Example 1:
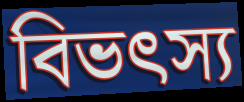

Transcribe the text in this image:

বিভৎস্য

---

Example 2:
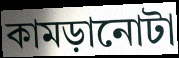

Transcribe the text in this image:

কামড়ানোটা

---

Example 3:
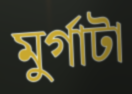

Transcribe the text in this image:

মুর্গাটা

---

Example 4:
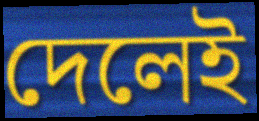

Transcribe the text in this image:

দেলেই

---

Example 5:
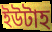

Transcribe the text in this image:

ইউটাহ